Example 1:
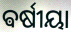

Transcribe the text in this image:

ଵର୍ଷୀୟା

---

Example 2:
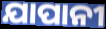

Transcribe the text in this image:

ଯାପାନୀ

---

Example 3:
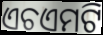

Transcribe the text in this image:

ଏଚଏମଟି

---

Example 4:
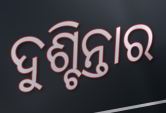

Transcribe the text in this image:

ଦୁଶ୍ଚିନ୍ତାର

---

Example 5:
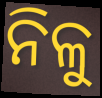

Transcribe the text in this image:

ନିଳୁ